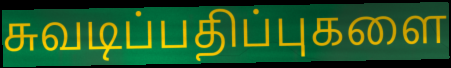
சுவடிப்பதிப்புகளை